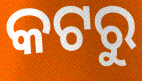
କଟରୁ